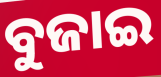
ବୁଜାଇ